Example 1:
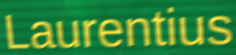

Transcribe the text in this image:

Laurentius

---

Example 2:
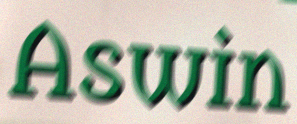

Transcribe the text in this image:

Aswin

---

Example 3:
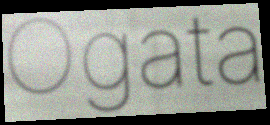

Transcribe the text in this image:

Ogata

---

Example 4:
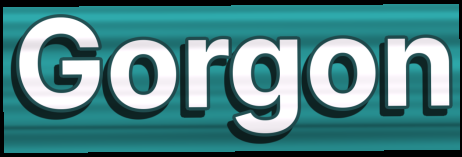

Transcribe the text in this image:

Gorgon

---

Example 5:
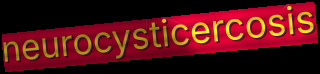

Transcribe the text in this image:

neurocysticercosis